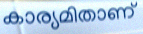
കാര്യമിതാണ്